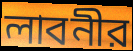
লাবনীর